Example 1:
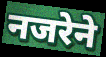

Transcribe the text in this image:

नजरेने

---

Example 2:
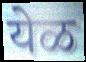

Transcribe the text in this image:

येळ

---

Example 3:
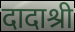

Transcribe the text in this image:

दादाश्री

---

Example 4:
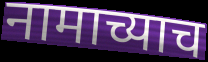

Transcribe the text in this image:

नामाच्याच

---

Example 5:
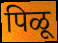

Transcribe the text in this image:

पिळू